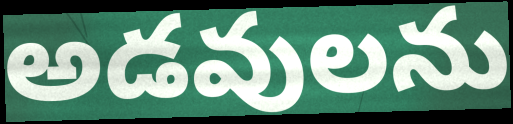
అడవులను